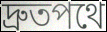
দ্রুতপথে